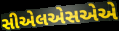
સીએલએસએએ